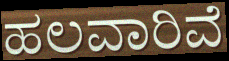
ಹಲವಾರಿವೆ